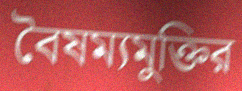
বৈষম্যমুক্তির